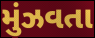
મુંઝવતા